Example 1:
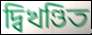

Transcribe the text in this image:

দ্বিখণ্ডিত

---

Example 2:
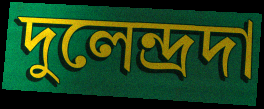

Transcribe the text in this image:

দুলেন্দ্রদা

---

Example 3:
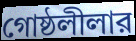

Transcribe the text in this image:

গোষ্ঠলীলার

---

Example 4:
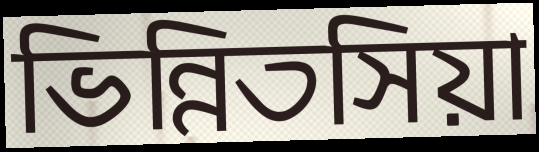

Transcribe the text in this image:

ভিন্নিতসিয়া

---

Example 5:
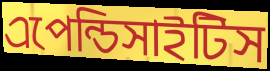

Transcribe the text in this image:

এপেন্ডিসাইটিস